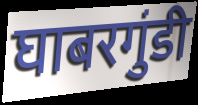
घाबरगुंडी